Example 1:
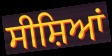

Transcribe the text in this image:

ਸੀਸ਼ਿਆਂ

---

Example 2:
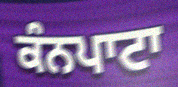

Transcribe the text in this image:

ਕੰਨਪਾਟਾ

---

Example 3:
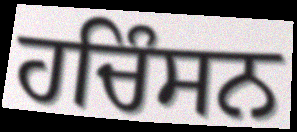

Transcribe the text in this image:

ਹਚਿੰਸਨ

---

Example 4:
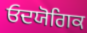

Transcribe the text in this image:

ਓਦਯੋਗਿਕ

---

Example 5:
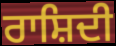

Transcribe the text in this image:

ਰਾਸ਼ਿਦੀ